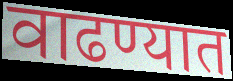
वाढण्यात